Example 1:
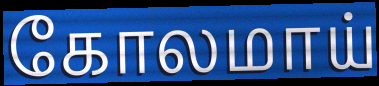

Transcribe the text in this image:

கோலமாய்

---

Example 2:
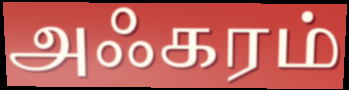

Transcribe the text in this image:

அஃகரம்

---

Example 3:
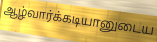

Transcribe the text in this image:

ஆழ்வார்க்கடியானுடைய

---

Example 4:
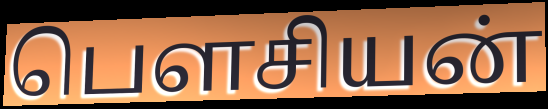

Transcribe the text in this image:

பௌசியன்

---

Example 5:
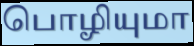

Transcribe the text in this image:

பொழியுமா